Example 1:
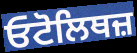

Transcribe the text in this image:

ਓਟੋਲਿਥਜ਼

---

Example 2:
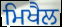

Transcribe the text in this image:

ਮਿਖੈਲ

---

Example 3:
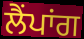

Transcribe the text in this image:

ਲੈਂਪਾਂਗ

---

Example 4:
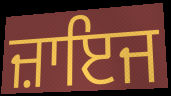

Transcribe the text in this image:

ਜ਼ਾਇਜ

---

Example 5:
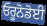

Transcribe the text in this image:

ਓਰੂਨੋਡੋਈ